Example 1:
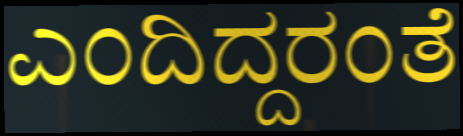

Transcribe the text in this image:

ಎಂದಿದ್ದರಂತೆ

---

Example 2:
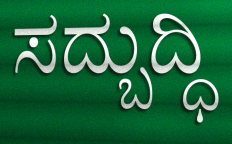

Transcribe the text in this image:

ಸದ್ಬುದ್ಧಿ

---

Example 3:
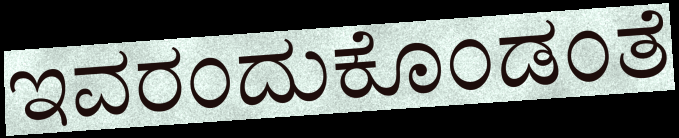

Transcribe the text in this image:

ಇವರಂದುಕೊಂಡಂತೆ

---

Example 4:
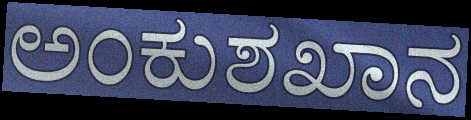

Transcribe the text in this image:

ಅಂಕುಶಖಾನ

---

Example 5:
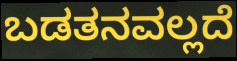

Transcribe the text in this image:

ಬಡತನವಲ್ಲದೆ